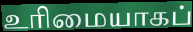
உரிமையாகப்